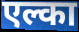
एल्का